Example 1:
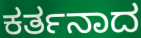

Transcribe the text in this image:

ಕರ್ತನಾದ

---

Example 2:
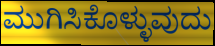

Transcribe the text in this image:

ಮುಗಿಸಿಕೊಳ್ಳುವುದು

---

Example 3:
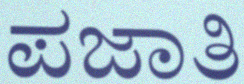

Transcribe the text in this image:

ಪಜಾತಿ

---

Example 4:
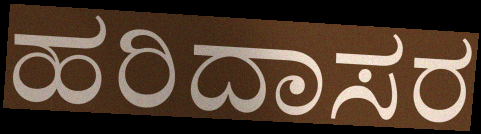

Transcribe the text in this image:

ಹರಿದಾಸರ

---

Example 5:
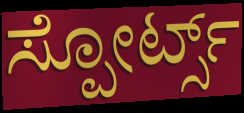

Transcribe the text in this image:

ಸ್ಪೋರ್ಟ್ಸ್